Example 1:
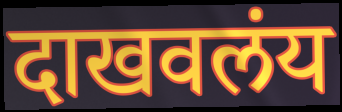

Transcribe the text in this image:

दाखवलंय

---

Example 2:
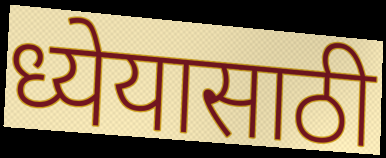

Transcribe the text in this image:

ध्येयासाठी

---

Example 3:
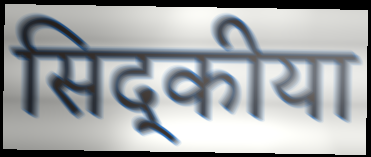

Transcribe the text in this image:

सिद्‌कीया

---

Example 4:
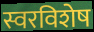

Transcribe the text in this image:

स्वरविशेष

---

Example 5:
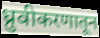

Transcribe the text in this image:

ध्रुवीकरणातून